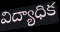
విద్యాధిక